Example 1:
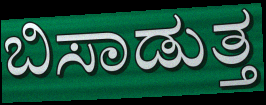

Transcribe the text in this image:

ಬಿಸಾಡುತ್ತ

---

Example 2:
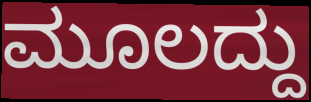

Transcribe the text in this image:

ಮೂಲದ್ದು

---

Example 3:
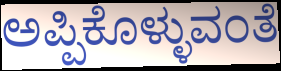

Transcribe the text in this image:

ಅಪ್ಪಿಕೊಳ್ಳುವಂತೆ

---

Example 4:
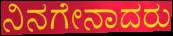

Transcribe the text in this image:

ನಿನಗೇನಾದರು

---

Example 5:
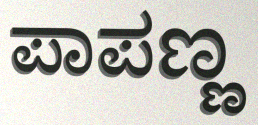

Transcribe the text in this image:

ಪಾಪಣ್ಣ